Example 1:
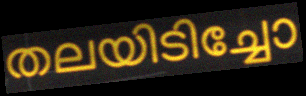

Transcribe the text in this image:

തലയിടിച്ചോ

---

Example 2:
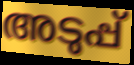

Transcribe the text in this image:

അടുപ്പ്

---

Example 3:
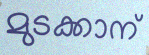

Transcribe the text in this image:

മുടക്കാന്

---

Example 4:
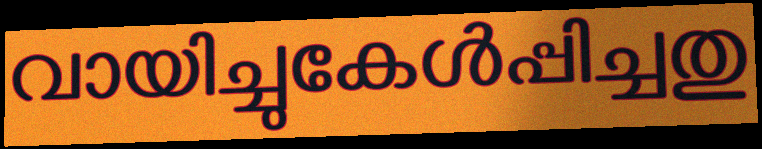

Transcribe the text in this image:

വായിച്ചുകേൾപ്പിച്ചതു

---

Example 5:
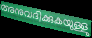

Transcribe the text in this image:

അനുവദിക്കുകയുള്ളു